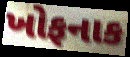
ખોફનાક